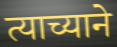
त्याच्याने